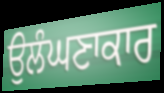
ਉਲੰਘਣਾਕਾਰ